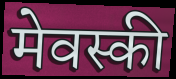
मेवस्की